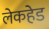
लेकहेड